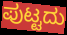
ಪುಟ್ಟದು